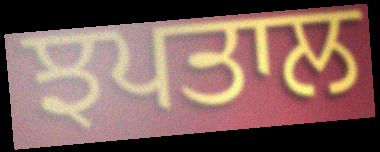
ਝਪਤਾਲ